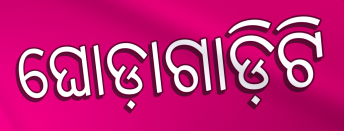
ଘୋଡ଼ାଗାଡ଼ିଟି